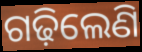
ଗଢ଼ିଲେଣି